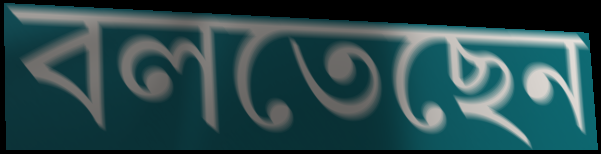
বলতেছেন